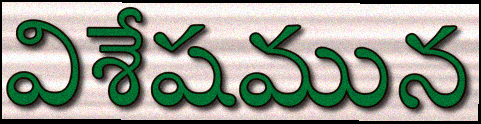
విశేషమున